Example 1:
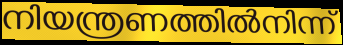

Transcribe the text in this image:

നിയന്ത്രണത്തിൽനിന്ന്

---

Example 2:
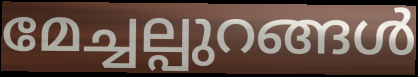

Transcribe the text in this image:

മേച്ചല്പുറങ്ങൾ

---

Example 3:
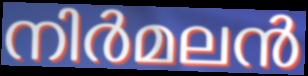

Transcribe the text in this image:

നിർമലൻ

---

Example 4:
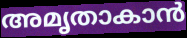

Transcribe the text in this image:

അമൃതാകാൻ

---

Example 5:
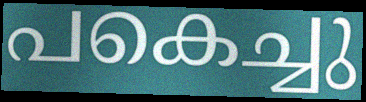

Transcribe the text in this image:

പകെച്ചു